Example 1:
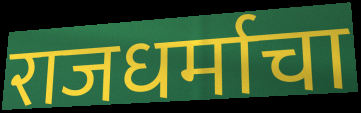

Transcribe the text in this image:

राजधर्माचा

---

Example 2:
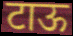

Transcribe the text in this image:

टाऊ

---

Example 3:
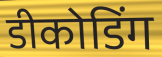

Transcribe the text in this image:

डीकोडिंग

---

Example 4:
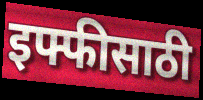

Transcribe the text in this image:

इफ्फीसाठी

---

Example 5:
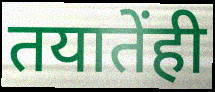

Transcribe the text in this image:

तयातेंही